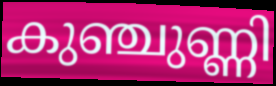
കുഞ്ചുണ്ണി